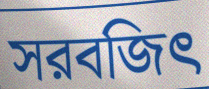
সরবজিৎ